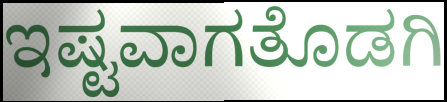
ಇಷ್ಟವಾಗತೊಡಗಿ